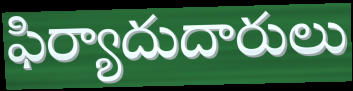
ఫిర్యాదుదారులు